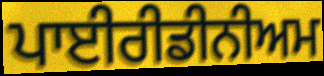
ਪਾਈਰੀਡੀਨੀਅਮ